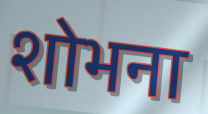
शोभना